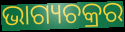
ଭାଗ୍ୟଚକ୍ରର